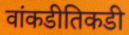
वांकडीतिकडी